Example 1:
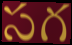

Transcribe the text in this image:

సగ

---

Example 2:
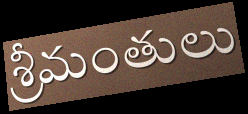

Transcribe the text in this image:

శ్రీమంతులు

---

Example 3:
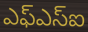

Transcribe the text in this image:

ఎఫ్ఎస్ఐ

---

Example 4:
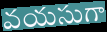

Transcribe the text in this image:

వయసుగా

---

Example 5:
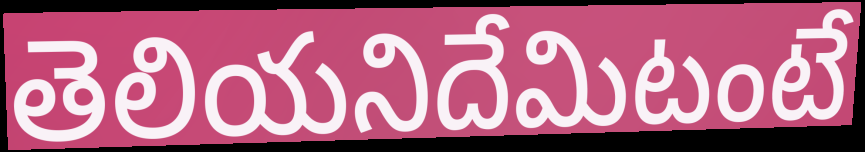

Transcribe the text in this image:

తెలియనిదేమిటంటే